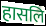
हासलि